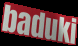
baduki